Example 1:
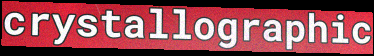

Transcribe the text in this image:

crystallographic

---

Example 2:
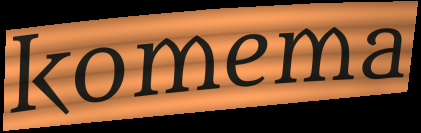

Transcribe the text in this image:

komema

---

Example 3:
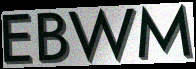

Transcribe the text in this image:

EBWM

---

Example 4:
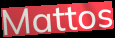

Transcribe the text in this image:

Mattos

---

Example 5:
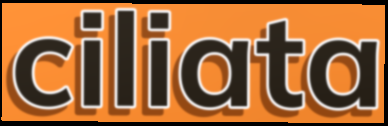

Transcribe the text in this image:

ciliata